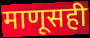
माणूसही